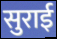
सुराई